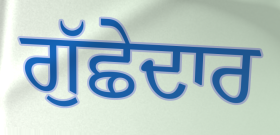
ਗੁੱਛੇਦਾਰ